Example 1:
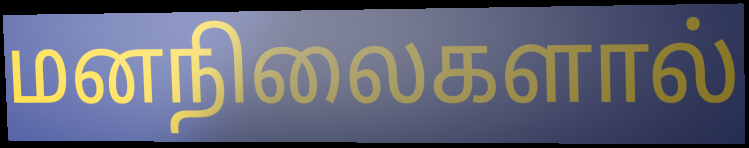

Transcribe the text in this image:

மனநிலைகளால்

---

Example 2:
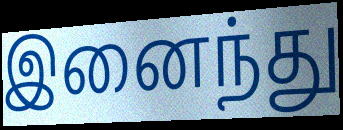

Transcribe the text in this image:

இனைந்து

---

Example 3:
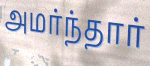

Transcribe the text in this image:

அமர்ந்தார்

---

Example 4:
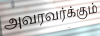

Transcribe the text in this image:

அவரவர்க்கும்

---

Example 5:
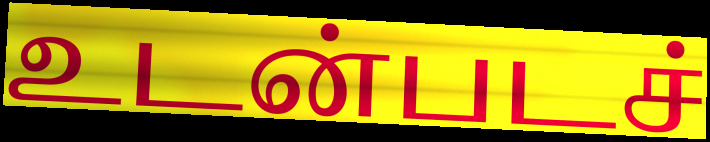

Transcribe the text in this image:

உடன்படச்